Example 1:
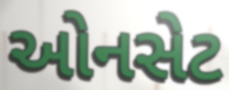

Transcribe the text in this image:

ઓનસેટ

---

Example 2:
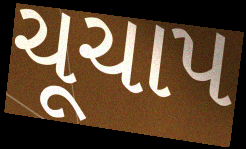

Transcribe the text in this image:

ચૂચાપ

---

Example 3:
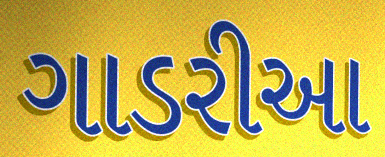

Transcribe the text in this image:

ગાડરીઆ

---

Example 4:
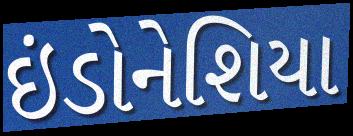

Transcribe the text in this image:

ઇંડોનેશિયા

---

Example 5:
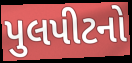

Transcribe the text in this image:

પુલપીટનો